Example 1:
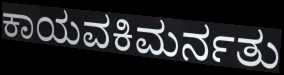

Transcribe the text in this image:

ಕಾಯವಕಿಮರ್ನತು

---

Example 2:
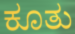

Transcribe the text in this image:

ಕೂತು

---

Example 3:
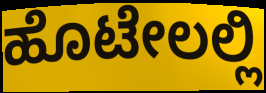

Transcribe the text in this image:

ಹೊಟೇಲಲ್ಲಿ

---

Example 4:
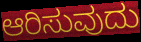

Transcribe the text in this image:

ಆರಿಸುವುದು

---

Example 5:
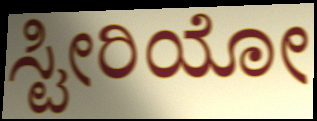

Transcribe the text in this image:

ಸ್ಟೀರಿಯೋ